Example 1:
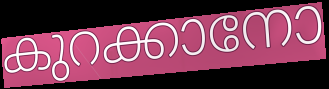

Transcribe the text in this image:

കുറക്കാനോ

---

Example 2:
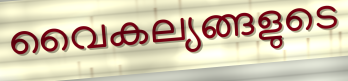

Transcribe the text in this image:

വൈകല്യങ്ങളുടെ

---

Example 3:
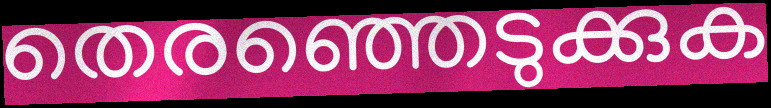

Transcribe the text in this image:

തെരഞ്ഞെടുക്കുക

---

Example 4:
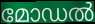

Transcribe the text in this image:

മോഡൽ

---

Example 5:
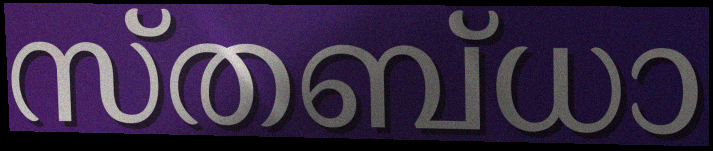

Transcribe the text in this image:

സ്തബ്ധാ